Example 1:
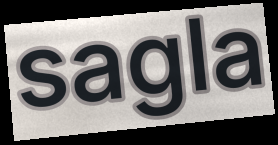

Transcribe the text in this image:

sagla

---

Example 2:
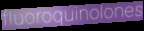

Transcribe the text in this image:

fluoroquinolones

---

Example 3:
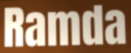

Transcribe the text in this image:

Ramda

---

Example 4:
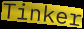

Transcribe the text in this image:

Tinker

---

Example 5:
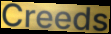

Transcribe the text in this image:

Creeds